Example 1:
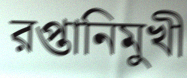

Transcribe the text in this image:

রপ্তানিমুখী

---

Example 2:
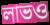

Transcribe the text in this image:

লাভও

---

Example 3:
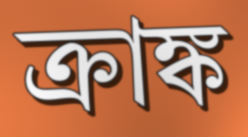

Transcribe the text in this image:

ক্রাঙ্ক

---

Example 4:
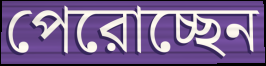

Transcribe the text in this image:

পেরোচ্ছেন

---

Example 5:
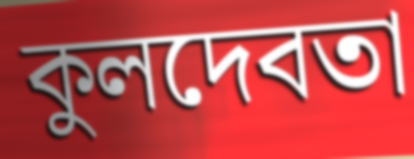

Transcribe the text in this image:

কুলদেবতা